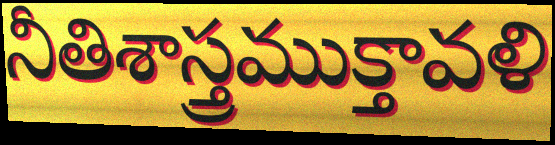
నీతిశాస్త్రముక్తావళి